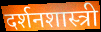
दर्शनशास्त्री